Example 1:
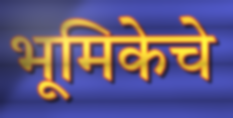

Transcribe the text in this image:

भूमिकेचे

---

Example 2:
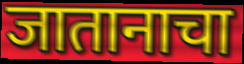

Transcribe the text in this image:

जातानाचा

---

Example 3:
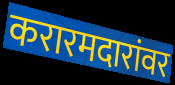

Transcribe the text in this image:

करारमदारांवर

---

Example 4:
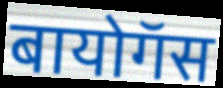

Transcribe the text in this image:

बायोगॅस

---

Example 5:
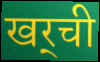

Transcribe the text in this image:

खर्ची